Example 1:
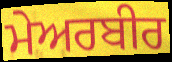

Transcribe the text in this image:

ਮੇਅਰਬੀਰ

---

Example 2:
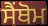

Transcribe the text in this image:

ਸੈਂਥੋਮ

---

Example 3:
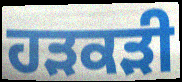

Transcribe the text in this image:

ਹੜਕੜੀ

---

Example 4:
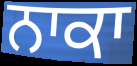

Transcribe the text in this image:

ਨਾਕਾ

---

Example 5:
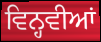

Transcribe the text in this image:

ਵਿਨ੍ਹਵੀਆਂ